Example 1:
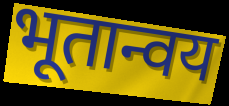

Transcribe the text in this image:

भूतान्वय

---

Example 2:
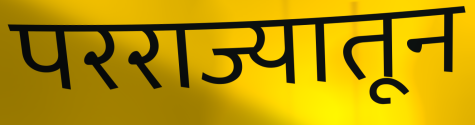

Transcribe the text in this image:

परराज्यातून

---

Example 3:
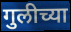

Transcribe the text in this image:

गुलीच्या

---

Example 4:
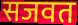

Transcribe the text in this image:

सजवत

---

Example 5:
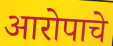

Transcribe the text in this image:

आरोपाचे